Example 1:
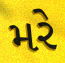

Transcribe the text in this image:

મરે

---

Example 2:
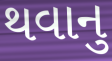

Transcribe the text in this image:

થવાનુ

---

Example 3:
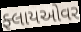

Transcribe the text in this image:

ફ્લાયઓવર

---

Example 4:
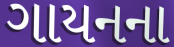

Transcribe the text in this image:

ગાયનના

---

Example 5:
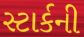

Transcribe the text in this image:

સ્ટાર્કની